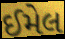
ઈમેલ